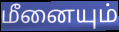
மீனையும்